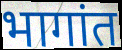
भागांत